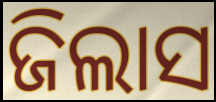
ଜିଲାସ